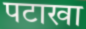
पटाखा